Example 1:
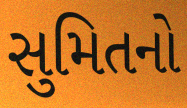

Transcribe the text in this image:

સુમિતનો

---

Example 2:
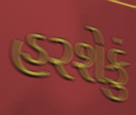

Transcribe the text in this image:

હરશેકું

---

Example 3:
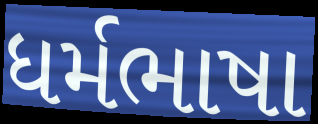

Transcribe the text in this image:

ધર્મભાષા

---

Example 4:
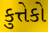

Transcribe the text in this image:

કુત્તેકો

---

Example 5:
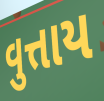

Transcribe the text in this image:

વુત્તાય